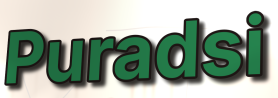
Puradsi